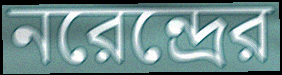
নরেন্দ্রের